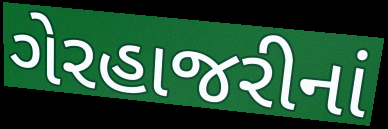
ગેરહાજરીનાં